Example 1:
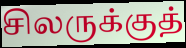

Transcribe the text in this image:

சிலருக்குத்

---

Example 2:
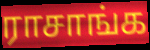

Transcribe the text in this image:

ராசாங்க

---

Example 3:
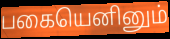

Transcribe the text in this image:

பகையெனினும்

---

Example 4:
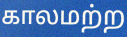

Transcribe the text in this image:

காலமற்ற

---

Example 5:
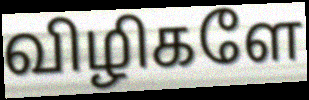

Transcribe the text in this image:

விழிகளே